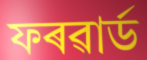
ফৰৱাৰ্ড